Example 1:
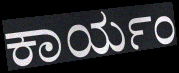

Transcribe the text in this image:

ಕಾರ್ಯಂ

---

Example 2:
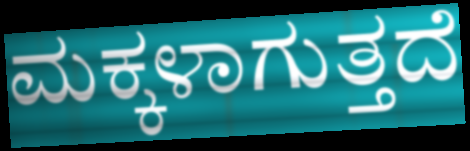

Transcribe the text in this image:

ಮಕ್ಕಳಾಗುತ್ತದೆ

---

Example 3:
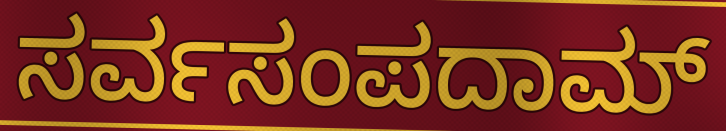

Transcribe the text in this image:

ಸರ್ವಸಂಪದಾಮ್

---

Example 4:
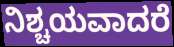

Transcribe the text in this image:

ನಿಶ್ಚಯವಾದರೆ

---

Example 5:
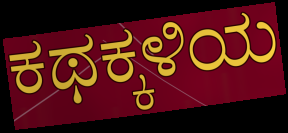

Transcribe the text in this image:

ಕಥಕ್ಕಳಿಯ